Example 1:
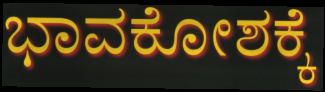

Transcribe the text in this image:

ಭಾವಕೋಶಕ್ಕೆ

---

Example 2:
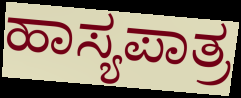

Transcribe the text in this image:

ಹಾಸ್ಯಪಾತ್ರ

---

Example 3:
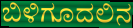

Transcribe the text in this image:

ಬಿಳಿಗೂದಲಿನ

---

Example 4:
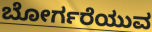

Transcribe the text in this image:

ಬೋರ್ಗರೆಯುವ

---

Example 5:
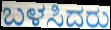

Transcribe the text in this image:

ಬಳಸಿದರು